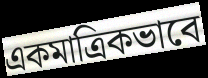
একমাত্রিকভাবে